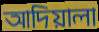
আদিয়ালা